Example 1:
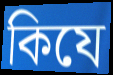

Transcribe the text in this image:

কিযে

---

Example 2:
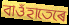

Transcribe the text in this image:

বাওঁহাতেৰে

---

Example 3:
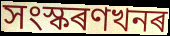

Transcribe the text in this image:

সংস্কৰণখনৰ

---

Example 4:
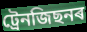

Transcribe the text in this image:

ট্ৰেনজিছনৰ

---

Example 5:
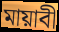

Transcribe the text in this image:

মায়াবী